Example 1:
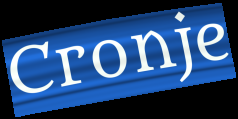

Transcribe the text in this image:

Cronje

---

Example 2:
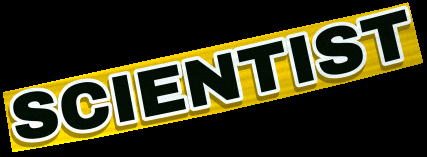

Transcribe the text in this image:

SCIENTIST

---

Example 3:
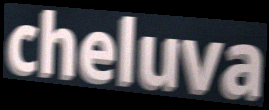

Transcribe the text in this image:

cheluva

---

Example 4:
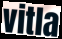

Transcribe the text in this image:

vitla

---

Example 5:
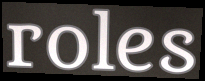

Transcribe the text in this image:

roles